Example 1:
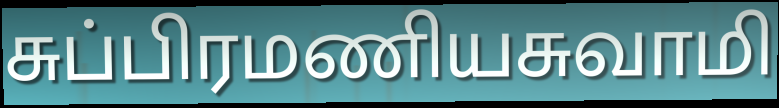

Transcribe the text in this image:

சுப்பிரமணியசுவாமி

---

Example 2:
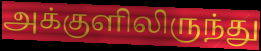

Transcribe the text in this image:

அக்குளிலிருந்து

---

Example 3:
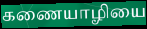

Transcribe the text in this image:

கணையாழியை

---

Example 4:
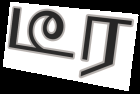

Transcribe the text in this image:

டீர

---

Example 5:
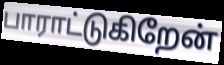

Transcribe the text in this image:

பாராட்டுகிறேன்